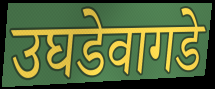
उघडेवागडे